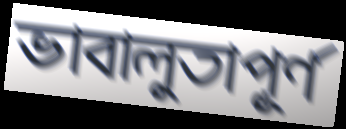
ভাবালুতাপূর্ণ